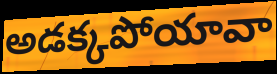
అడక్కపోయావా